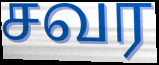
சவர